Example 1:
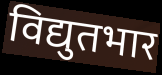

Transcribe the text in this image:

विद्युतभार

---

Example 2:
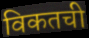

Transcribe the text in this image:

विकतची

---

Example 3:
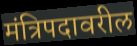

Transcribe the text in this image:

मंत्रिपदावरील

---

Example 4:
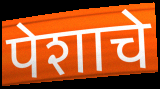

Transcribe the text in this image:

पेशाचे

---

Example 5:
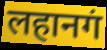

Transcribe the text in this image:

लहानगं